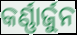
କର୍ଣ୍ଣାର୍ଜୁନ